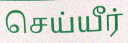
செய்யீர்